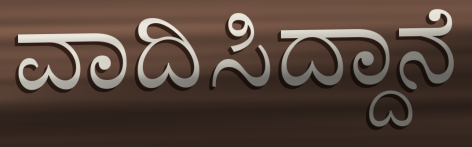
ವಾದಿಸಿದ್ದಾನೆ